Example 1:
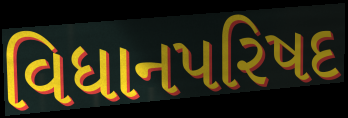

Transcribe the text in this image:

વિધાનપરિષદ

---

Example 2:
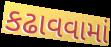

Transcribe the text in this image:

કઢાવવામાં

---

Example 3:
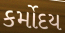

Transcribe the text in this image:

કર્મોદય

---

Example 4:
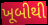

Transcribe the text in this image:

ખૂબીથી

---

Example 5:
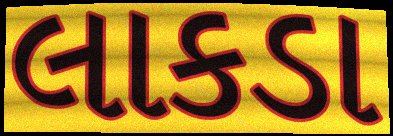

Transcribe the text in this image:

લાકડા